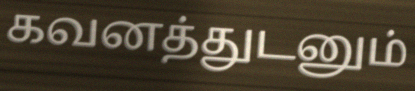
கவனத்துடனும்